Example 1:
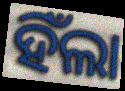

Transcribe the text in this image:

ହିଁଲା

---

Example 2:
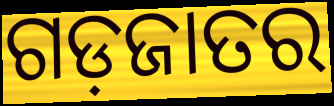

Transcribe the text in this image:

ଗଡ଼ଜାତର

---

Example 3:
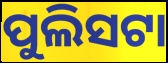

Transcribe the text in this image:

ପୁଲିସଟା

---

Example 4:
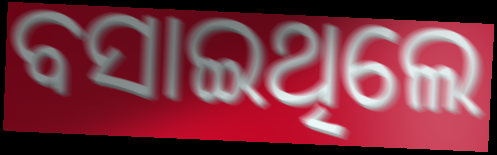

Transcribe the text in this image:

ବସାଇଥିଲେ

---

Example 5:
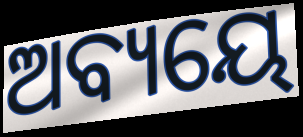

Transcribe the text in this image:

ଅବ୍ୟୟେ